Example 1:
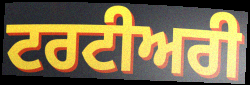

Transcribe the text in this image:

ਟਰਟੀਅਰੀ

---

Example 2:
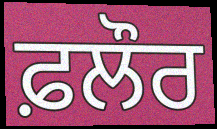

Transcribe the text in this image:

ਫ਼ਲੌਰ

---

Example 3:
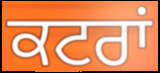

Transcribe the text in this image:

ਕਟਰਾਂ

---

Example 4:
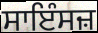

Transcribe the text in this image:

ਸਾਇੰਸਜ਼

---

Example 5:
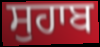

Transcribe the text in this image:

ਸੁਹਾਬ